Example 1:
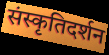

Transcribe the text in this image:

संस्कृतिदर्शन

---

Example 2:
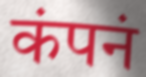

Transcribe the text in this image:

कंपनं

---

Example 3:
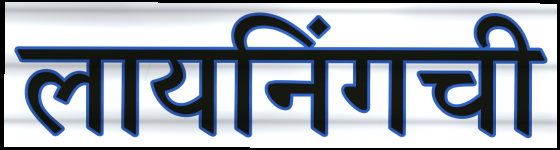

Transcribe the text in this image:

लायनिंगची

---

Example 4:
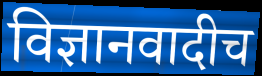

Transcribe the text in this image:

विज्ञानवादीच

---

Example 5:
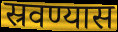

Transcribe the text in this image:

स्रवण्यास